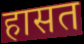
हासत